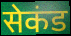
सेकंड